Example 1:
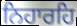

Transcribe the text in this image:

ਨਿਹਾਰਹਿ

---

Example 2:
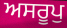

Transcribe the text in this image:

ਅਸਰੂਪੁ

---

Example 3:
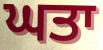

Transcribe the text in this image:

ਘਤਾ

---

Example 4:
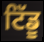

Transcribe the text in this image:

ਟਿੱਡੂ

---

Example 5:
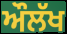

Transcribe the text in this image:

ਔਲੱਖ